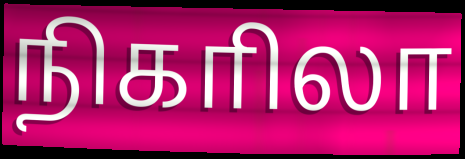
நிகரிலா